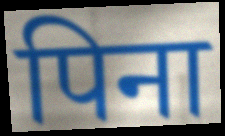
पिना